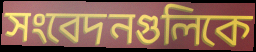
সংবেদনগুলিকে